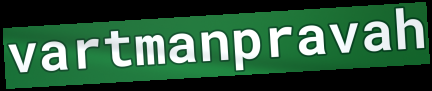
vartmanpravah